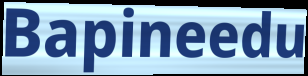
Bapineedu